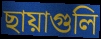
ছায়াগুলি